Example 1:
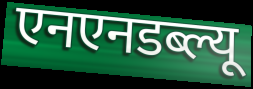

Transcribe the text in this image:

एनएनडब्ल्यू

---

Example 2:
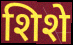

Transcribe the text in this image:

शिशे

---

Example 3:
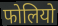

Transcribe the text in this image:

फोलियो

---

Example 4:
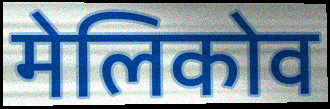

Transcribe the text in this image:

मेलिकोव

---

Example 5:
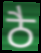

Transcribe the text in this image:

ठै